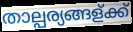
താല്പര്യങ്ങള്ക്ക്